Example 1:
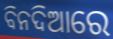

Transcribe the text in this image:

ବିନଦିଆରେ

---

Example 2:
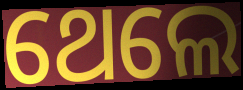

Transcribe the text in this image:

ଥେଲେ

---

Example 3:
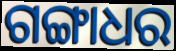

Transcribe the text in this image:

ଗଙ୍ଗାଧର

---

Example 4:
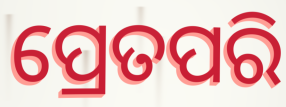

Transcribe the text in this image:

ପ୍ରେତପରି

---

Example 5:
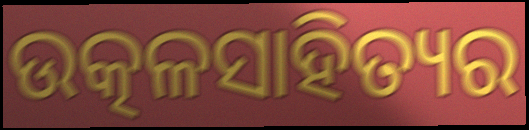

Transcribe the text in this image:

ଉତ୍କଳସାହିତ୍ୟର